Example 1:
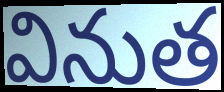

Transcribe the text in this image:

వినుత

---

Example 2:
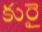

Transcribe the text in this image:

కురై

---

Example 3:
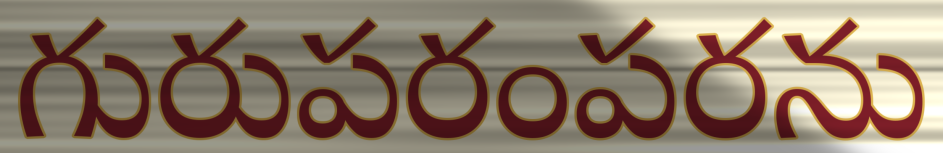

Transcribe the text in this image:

గురుపరంపరను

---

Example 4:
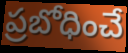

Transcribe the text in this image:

ప్రబోధించే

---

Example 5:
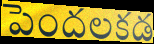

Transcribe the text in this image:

పెందలకడ